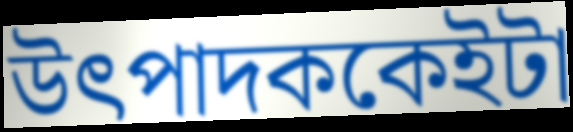
উৎপাদককেইটা